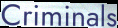
Criminals